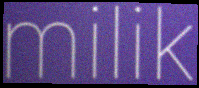
milik